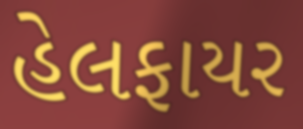
હેલફાયર